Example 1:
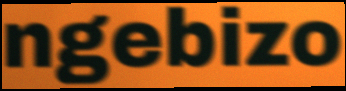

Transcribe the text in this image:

ngebizo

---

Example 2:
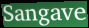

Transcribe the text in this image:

Sangave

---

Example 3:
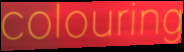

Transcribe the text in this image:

colouring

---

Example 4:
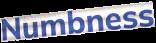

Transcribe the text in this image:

Numbness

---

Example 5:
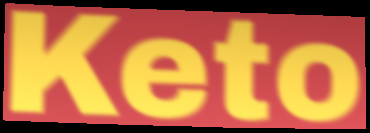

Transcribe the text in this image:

Keto